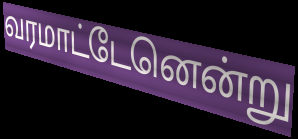
வரமாட்டேனென்று